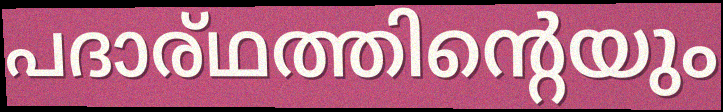
പദാര്ഥത്തിന്റെയും